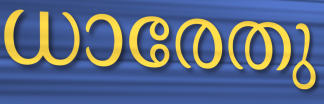
ധാരേതു